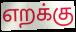
எறக்கு